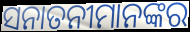
ସନାତନୀମାନଙ୍କର